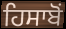
ਹਿਸਾਬੋਂ